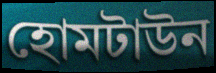
হোমটাউন